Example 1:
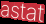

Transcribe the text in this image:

astat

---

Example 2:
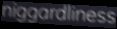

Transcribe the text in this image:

niggardliness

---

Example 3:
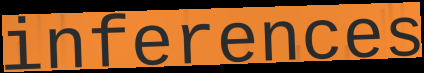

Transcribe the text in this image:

inferences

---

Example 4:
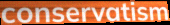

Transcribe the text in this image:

conservatism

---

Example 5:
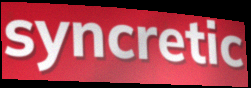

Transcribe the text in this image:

syncretic